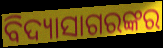
ବିଦ୍ୟାସାଗରଙ୍କର